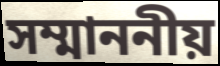
সম্মাননীয়